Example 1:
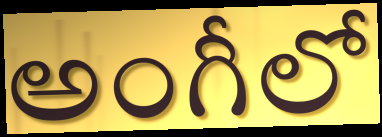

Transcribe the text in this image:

అంగీలో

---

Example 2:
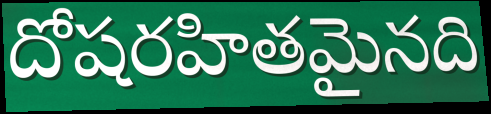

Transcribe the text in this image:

దోషరహితమైనది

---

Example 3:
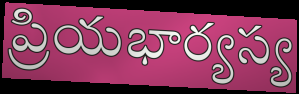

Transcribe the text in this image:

ప్రియభార్యస్య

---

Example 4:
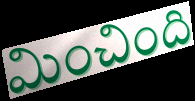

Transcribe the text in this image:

మించింది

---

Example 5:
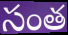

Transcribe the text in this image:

సంత